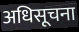
अधिसूचना